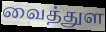
வைத்துள